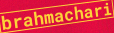
brahmachari